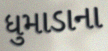
ધુમાડાના